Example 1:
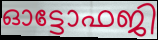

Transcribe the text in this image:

ഓട്ടോഫജി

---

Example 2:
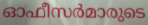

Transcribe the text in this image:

ഓഫീസർമാരുടെ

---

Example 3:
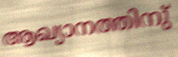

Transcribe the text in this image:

ആഖ്യാനത്തിനു്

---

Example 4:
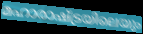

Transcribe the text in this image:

മഹാരാഷ്ട്രയിലെയും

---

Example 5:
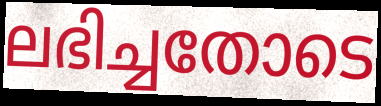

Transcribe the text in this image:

ലഭിച്ചതോടെ